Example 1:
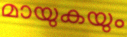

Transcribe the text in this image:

മായുകയും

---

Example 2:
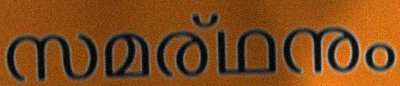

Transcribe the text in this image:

സമര്ഥനും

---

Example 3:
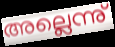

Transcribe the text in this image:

അല്ലെന്നു്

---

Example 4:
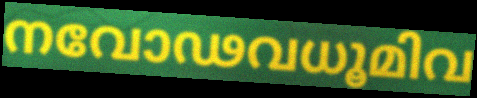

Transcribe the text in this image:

നവോഢവധൂമിവ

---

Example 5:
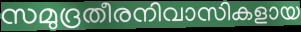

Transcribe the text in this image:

സമുദ്രതീരനിവാസികളായ